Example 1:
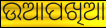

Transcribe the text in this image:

ଉଆପଖିଆ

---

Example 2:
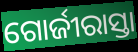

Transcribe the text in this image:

ଗୋର୍ଜୀରାସ୍ତା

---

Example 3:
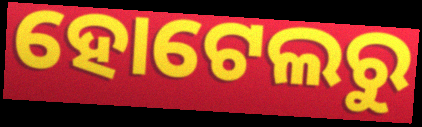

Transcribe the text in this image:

ହୋଟେଲରୁ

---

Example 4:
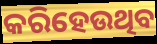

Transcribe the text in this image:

କରିହେଉଥିବ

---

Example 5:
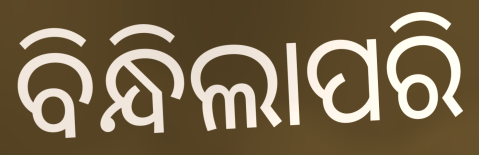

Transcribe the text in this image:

ବିନ୍ଧିଲାପରି